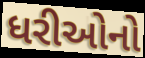
ધરીઓનો